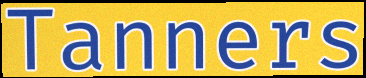
Tanners